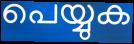
പെയ്യുക